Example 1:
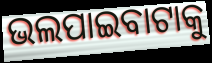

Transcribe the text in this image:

ଭଲପାଇବାଟାକୁ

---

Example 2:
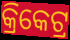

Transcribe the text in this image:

କ୍ରିକେଟ୍ର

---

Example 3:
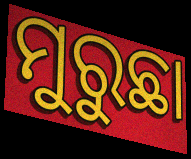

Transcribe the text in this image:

ମୁରୁଛା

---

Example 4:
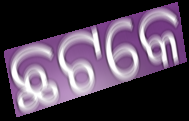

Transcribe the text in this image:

ଛଟକେ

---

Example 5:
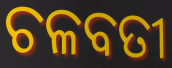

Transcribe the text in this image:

ଚଳବତୀ